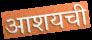
आशयची